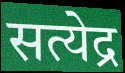
सत्येद्र